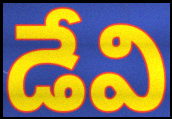
డేవి